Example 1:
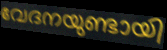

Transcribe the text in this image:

വേദനയുണ്ടായി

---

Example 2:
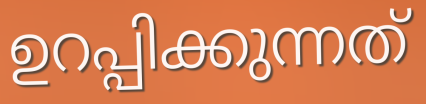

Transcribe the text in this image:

ഉറപ്പിക്കുന്നത്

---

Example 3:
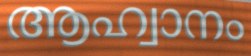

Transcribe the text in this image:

ആഹ്വാനം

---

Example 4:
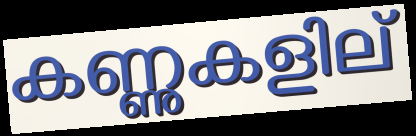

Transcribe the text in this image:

കണ്ണുകളില്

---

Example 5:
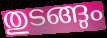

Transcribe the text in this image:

തുടങ്ങും